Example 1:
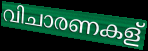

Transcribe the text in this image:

വിചാരണകള്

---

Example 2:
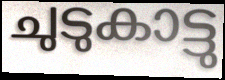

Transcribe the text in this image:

ചുടുകാട്ടു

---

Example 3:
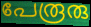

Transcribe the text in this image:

പേരൂരു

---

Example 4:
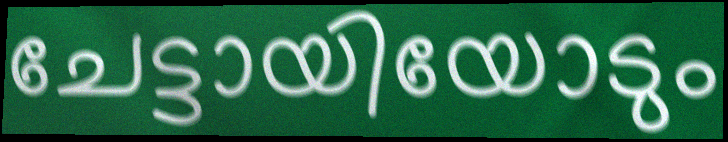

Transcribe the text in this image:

ചേട്ടായിയോടും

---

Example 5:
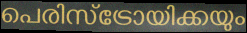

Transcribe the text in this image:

പെരിസ്ട്രോയിക്കയും